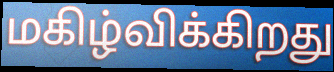
மகிழ்விக்கிறது